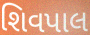
શિવપાલ